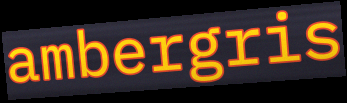
ambergris